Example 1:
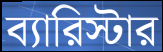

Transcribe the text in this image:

ব্যারিস্টার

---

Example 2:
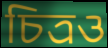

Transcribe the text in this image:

চিত্রও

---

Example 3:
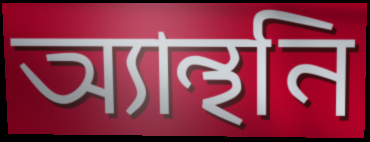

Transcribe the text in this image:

অ্যান্থনি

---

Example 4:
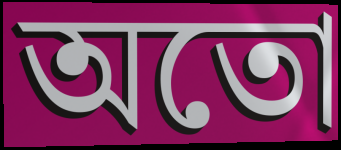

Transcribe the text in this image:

অতো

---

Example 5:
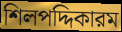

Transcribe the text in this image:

শিলপদ্দিকারম